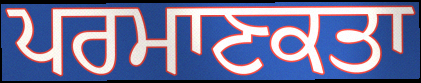
ਪਰਮਾਣਕਤਾ